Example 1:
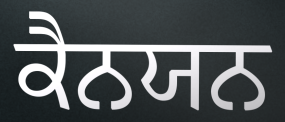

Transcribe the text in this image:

ਕੈਨਯਨ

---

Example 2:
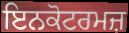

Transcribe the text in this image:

ਇਨਕੋਟਰਮਜ਼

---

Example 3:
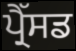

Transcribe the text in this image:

ਪ੍ਰੈੱਸਡ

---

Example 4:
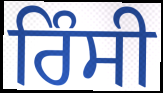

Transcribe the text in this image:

ਰਿੰਸੀ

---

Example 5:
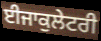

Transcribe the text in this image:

ਈਜਾਕੁਲੇਟਰੀ